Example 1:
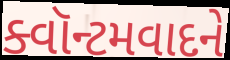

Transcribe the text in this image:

ક્વૉન્ટમવાદને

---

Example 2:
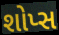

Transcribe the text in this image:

શોપ્સ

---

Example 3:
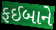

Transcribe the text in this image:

ફઈબાને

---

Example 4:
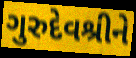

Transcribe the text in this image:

ગુરુદેવશ્રીને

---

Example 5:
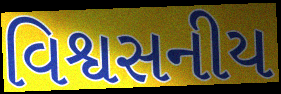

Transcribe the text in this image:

વિશ્વસનીય